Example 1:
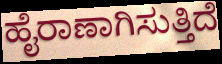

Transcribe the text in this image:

ಹೈರಾಣಾಗಿಸುತ್ತಿದೆ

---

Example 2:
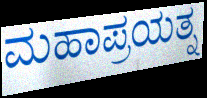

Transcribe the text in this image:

ಮಹಾಪ್ರಯತ್ನ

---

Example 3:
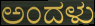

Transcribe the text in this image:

ಅಂದಳು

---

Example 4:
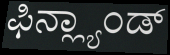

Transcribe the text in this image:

ಫಿನ್ಲ್ಯಾಂಡ್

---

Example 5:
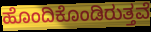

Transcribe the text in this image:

ಹೊಂದಿಕೊಂಡಿರುತ್ತವೆ